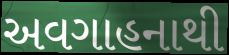
અવગાહનાથી